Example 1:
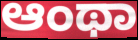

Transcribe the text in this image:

ಆಂಥಾ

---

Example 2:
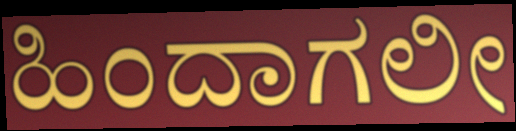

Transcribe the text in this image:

ಹಿಂದಾಗಲೀ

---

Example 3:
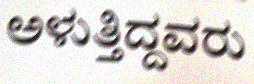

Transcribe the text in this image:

ಅಳುತ್ತಿದ್ದವರು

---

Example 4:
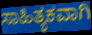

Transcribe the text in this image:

ಸಾಹಿತ್ಯಕವಾಗಿ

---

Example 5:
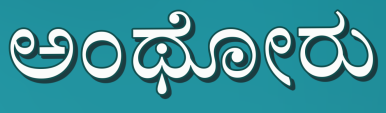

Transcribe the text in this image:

ಅಂಥೋರು